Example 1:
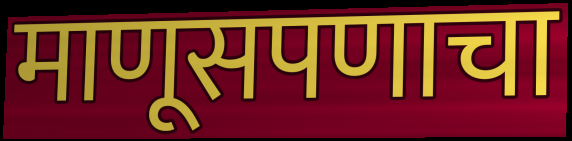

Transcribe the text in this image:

माणूसपणाचा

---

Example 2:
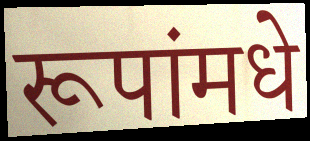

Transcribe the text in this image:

रूपांमधे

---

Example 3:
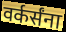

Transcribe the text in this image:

वर्कर्संना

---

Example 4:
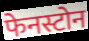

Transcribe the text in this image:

फेनस्टोन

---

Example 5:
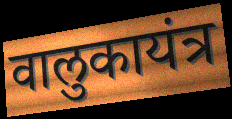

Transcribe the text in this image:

वालुकायंत्र